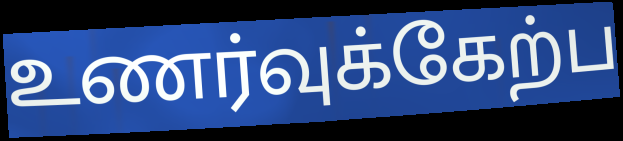
உணர்வுக்கேற்ப